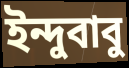
ইন্দুবাবু